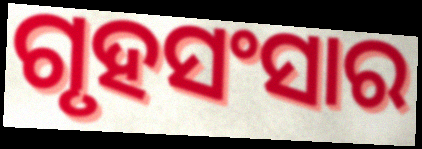
ଗୃହସଂସାର